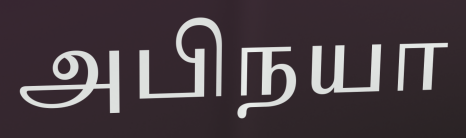
அபிநயா